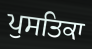
ਪੁਸਤਿਕਾ